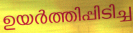
ഉയർത്തിപ്പിടിച്ച